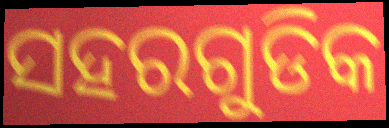
ସହରଗୁଡିକ